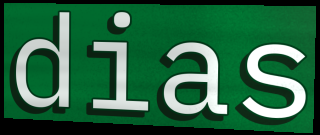
dias